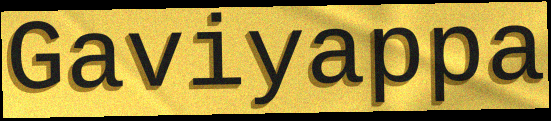
Gaviyappa